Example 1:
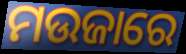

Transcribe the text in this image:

ମଉଜାରେ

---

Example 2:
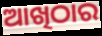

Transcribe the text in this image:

ଆଖିଠାର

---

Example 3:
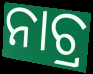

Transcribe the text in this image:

ନାଚ୍ର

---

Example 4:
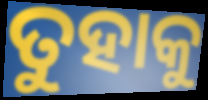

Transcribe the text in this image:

ତୁହାକୁ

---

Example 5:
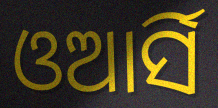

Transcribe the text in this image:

ଓଆର୍ସି